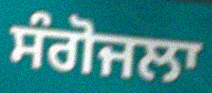
ਸੰਗੋਜਲਾ